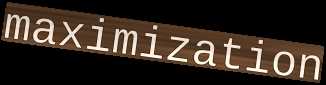
maximization